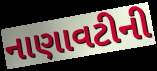
નાણાવટીની